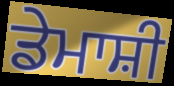
ਡੇਮਾਸ਼ੀ